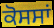
ਕੋਸਸਾਂ